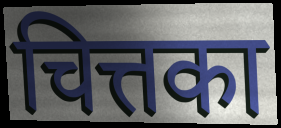
चित्तका